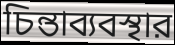
চিন্তাব্যবস্থার